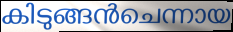
കിടുങ്ങൻചെന്നായ